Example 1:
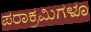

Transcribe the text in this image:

ಪರಾಕ್ರಮಿಗಳೂ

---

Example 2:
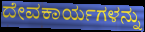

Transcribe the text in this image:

ದೇವಕಾರ್ಯಗಳನ್ನು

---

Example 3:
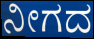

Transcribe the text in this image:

ನೀಗದ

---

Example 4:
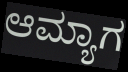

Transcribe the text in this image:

ಆಮ್ಯಾಗ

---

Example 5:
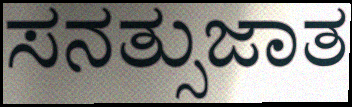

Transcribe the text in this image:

ಸನತ್ಸುಜಾತ